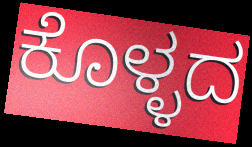
ಕೊಳ್ಳದ